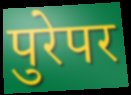
पुरेपर